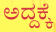
ಅದ್ದಕ್ಕೆ